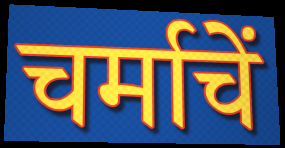
चर्माचें